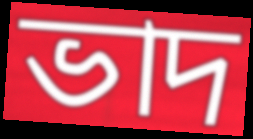
ভাদ